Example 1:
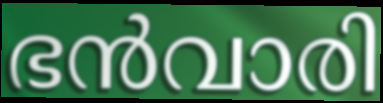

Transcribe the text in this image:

ഭൻവാരി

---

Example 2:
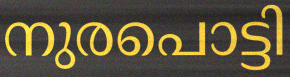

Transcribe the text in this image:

നുരപൊട്ടി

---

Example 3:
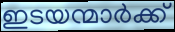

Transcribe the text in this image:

ഇടയന്മാർക്ക്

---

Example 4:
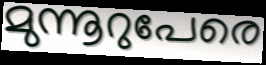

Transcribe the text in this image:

മുന്നൂറുപേരെ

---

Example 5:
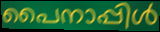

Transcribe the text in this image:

പൈനാപ്പിൾ